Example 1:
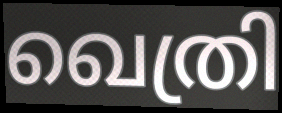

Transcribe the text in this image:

ഖെത്രി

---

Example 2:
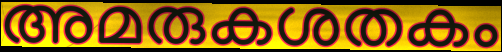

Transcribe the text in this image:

അമരുകശതകം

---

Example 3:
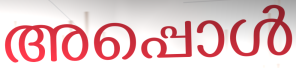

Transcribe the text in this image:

അപ്പൊൾ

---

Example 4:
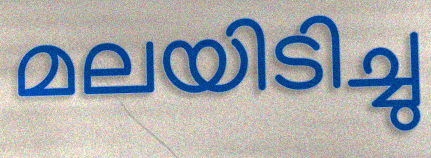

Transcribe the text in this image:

മലയിടിച്ചു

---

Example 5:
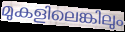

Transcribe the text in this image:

മുകളിലെങ്കിലും